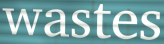
wastes